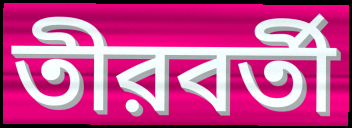
তীরবর্তী